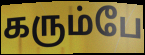
கரும்பே